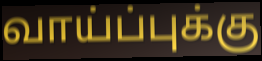
வாய்ப்புக்கு